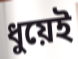
ধুয়েই